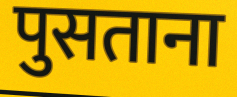
पुसताना